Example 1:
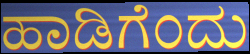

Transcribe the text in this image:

ಹಾಡಿಗೆಂದು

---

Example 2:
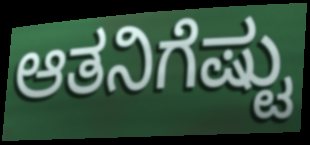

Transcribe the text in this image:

ಆತನಿಗೆಷ್ಟು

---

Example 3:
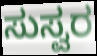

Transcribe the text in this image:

ಸುಸ್ವರ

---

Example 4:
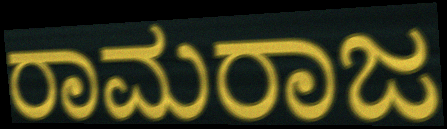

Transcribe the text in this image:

ರಾಮರಾಜ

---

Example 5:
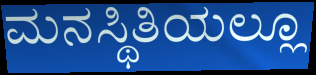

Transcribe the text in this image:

ಮನಸ್ಥಿತಿಯಲ್ಲೂ